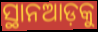
ସ୍ଥାନଆଡ଼କୁ